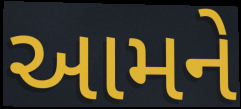
આમને